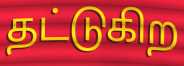
தட்டுகிற